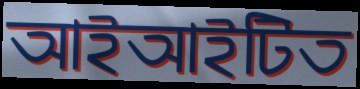
আইআইটিত